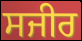
ਸਜੀਰ